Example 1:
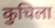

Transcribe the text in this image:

कुचिला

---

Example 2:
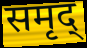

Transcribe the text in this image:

समृद्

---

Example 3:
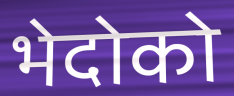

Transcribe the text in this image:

भेदोको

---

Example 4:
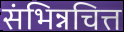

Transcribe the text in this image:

संभिन्नचित्त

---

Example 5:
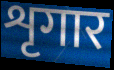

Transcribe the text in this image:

शृगार